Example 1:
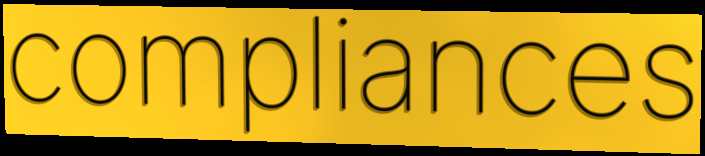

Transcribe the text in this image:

compliances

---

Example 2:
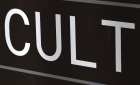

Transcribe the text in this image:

CULT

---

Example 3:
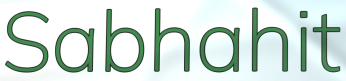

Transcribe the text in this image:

Sabhahit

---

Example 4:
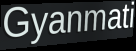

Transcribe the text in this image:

Gyanmati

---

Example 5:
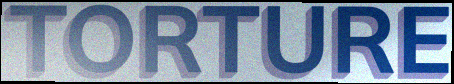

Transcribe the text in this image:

TORTURE